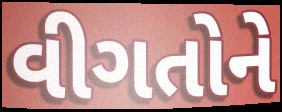
વીગતોને